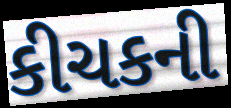
કીચકની